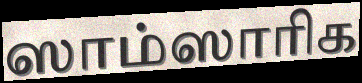
ஸாம்ஸாரிக